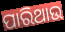
ପାରିଥାଉ